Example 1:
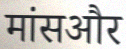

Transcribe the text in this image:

मांसऔर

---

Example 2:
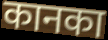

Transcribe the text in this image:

कानका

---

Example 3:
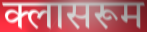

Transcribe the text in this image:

क्लासरूम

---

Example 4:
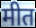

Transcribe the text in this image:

मीत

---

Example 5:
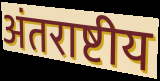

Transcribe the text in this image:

अंतराष्टीय